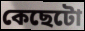
কেছেটো